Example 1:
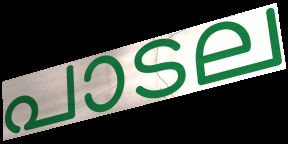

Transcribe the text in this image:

പാടല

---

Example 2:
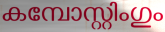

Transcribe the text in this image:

കമ്പോസ്റ്റിംഗും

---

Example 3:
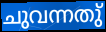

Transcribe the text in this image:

ചുവന്നതു്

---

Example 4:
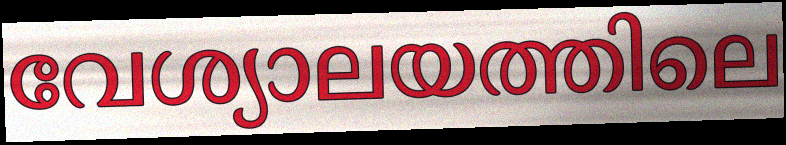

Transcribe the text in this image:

വേശ്യാലയത്തിലെ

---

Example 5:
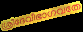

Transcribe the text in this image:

ശ്രീദേവീഭാഗവതേ